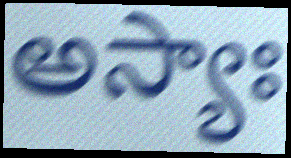
అస్యాః